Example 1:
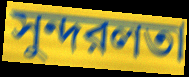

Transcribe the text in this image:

সুন্দরলতা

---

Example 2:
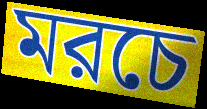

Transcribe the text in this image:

মরচে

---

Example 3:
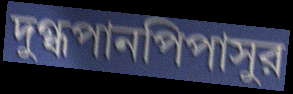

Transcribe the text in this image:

দুগ্ধপানপিপাসুর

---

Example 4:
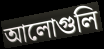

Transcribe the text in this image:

আলোগুলি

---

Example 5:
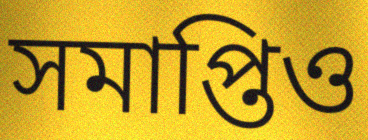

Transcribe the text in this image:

সমাপ্তিও